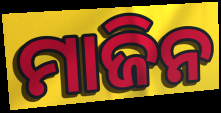
ମାଜିନ